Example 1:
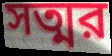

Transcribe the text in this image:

সত্মর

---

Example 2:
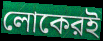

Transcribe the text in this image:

লোকেরই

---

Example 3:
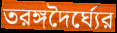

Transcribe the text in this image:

তরঙ্গদৈর্ঘ্যের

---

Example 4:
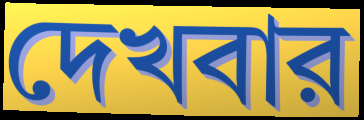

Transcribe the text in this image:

দেখবার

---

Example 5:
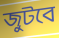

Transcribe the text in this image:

জুটবে